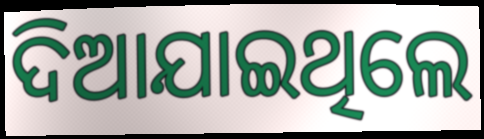
ଦିଆଯାଇଥିଲେ